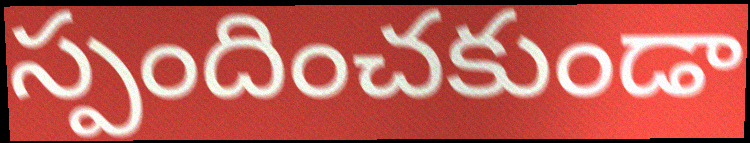
స్పందించకుండా